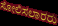
ಸೋಲಿಸಲಾರರು